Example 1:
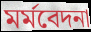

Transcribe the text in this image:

মৰ্মবেদনা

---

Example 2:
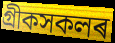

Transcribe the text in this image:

গ্ৰীকসকলৰ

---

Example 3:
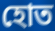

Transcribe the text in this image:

হোত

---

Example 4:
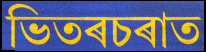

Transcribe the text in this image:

ভিতৰচৰাত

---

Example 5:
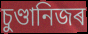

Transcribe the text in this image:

চুণ্ডানিজৰ